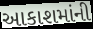
આકાશમાંની